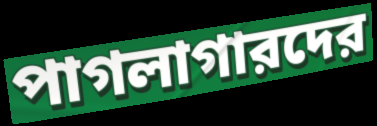
পাগলাগারদের